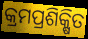
କ୍ରମପ୍ରଶିକ୍ଷିତ